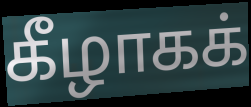
கீழாகக்